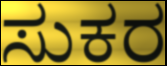
ಸುಕರ